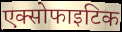
एक्सोफाइटिक